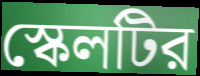
স্কেলটির